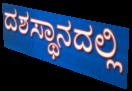
ದಶಸ್ಥಾನದಲ್ಲಿ